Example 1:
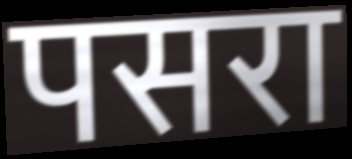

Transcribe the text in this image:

पसरा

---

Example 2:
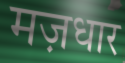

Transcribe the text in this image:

मज़धार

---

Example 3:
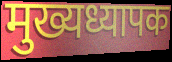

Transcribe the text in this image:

मुख्यध्यापक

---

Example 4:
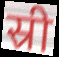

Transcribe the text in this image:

स्री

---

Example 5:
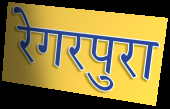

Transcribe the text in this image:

रेगरपुरा